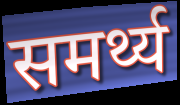
समर्थ्य